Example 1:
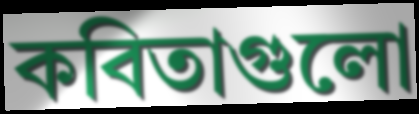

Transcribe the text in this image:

কবিতাগুলো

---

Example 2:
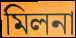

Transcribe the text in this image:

মিলনা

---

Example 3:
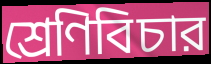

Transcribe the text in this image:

শ্রেণিবিচার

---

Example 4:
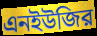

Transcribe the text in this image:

এনইউজির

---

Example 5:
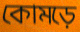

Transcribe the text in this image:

কোমড়ে